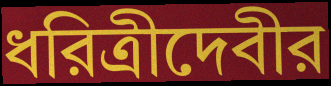
ধরিত্রীদেবীর